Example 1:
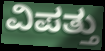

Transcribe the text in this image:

ವಿಪತ್ತು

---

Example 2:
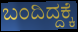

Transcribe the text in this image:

ಬಂದಿದ್ದಕ್ಕೆ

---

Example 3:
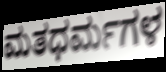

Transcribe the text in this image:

ಮತಧರ್ಮಗಳ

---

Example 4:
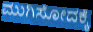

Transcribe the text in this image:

ಮುಗಿಸೋದಕ್ಕೆ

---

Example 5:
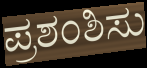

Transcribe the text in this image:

ಪ್ರಶಂಶಿಸು